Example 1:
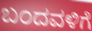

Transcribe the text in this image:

ಬಂದವಳಿಗೆ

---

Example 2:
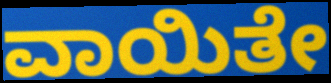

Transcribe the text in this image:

ವಾಯಿತೇ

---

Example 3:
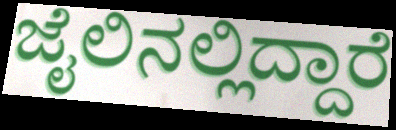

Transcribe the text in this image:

ಜೈಲಿನಲ್ಲಿದ್ದಾರೆ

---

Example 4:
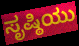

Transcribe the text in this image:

ಸೃಷ್ಠಿಯು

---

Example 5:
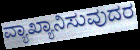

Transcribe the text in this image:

ವ್ಯಾಖ್ಯಾನಿಸುವುದರ